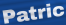
Patric